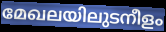
മേഖലയിലുടനീളം